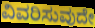
ವಿವರಿಸುವುದೇ